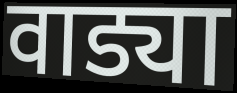
वाड्या